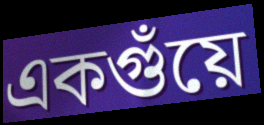
একগুঁয়ে